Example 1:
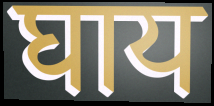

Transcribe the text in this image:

घाय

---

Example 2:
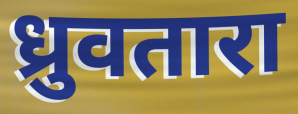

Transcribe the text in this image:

ध्रुवतारा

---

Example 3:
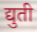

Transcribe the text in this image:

द्युती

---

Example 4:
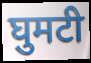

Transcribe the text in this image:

घुमटी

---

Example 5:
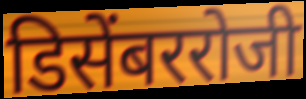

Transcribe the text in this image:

डिसेंबररोजी